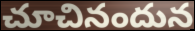
చూచినందున